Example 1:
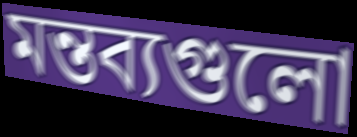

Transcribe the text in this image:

মন্তব্যগুলো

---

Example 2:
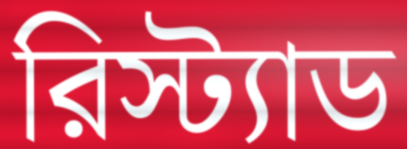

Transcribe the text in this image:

রিস্ট্যাড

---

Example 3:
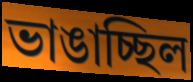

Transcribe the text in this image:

ভাঙাচ্ছিল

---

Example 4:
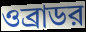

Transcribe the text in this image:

ওব্রাডর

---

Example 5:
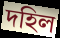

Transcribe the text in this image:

দহিল